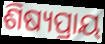
ଶିଷ୍ୟପ୍ରାୟ